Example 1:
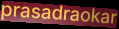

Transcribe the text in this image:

prasadraokar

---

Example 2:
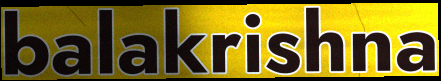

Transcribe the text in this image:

balakrishna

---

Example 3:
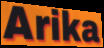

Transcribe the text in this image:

Arika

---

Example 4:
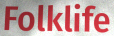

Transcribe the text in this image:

Folklife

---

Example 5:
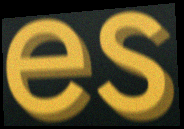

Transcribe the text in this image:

es